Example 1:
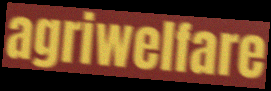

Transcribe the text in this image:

agriwelfare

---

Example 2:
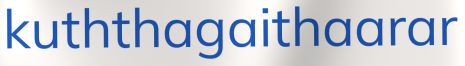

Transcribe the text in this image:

kuththagaithaarar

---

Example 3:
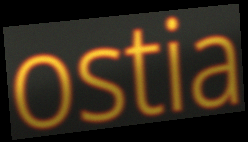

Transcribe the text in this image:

ostia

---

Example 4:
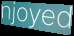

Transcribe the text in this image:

njoyed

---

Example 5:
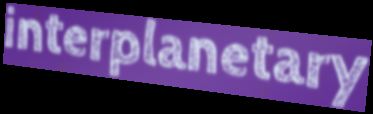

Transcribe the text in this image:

interplanetary